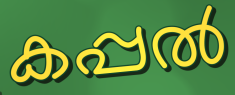
കപ്പൽ